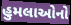
હુમલાઓનો